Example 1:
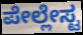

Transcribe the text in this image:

ಪೇಲ್ಲೇಸ್ಟ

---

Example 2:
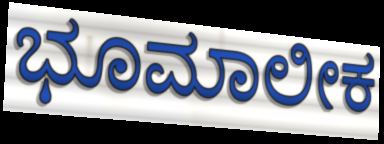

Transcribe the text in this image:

ಭೂಮಾಲೀಕ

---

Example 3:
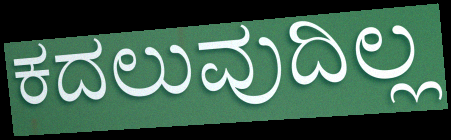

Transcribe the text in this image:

ಕದಲುವುದಿಲ್ಲ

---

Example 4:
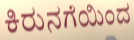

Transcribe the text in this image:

ಕಿರುನಗೆಯಿಂದ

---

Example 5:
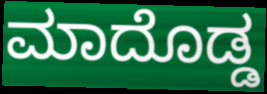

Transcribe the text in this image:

ಮಾದೊಡ್ಡ